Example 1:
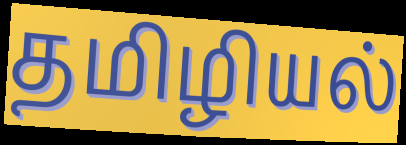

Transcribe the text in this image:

தமிழியல்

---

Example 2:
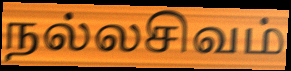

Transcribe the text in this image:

நல்லசிவம்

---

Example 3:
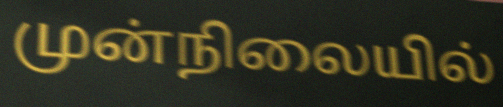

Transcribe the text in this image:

முன்நிலையில்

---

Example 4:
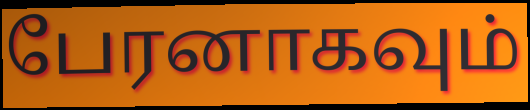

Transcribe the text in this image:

பேரனாகவும்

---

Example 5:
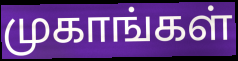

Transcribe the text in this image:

முகாங்கள்